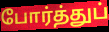
போர்த்துப்